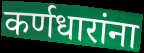
कर्णधारांना